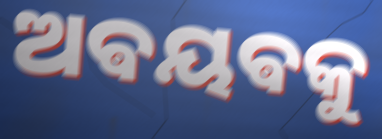
ଅଵୟଵକୁ